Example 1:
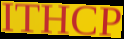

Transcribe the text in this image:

ITHCP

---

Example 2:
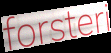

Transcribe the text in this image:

forsteri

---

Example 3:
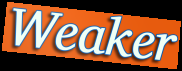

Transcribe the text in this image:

Weaker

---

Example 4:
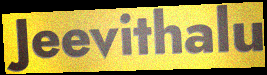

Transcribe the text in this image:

Jeevithalu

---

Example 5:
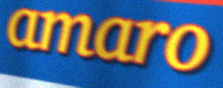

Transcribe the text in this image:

amaro